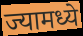
ज्यामध्ये